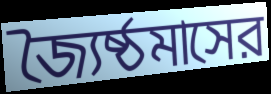
জ্যৈষ্ঠমাসের